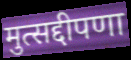
मुत्सद्दीपणा